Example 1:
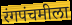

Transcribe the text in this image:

रंगपंचमीला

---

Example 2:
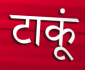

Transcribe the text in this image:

टाकूं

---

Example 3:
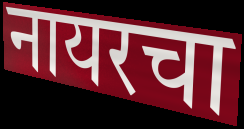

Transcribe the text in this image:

नायरचा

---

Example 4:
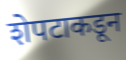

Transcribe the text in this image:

शेपटाकडून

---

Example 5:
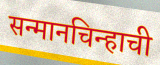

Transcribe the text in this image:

सन्मानचिन्हाची